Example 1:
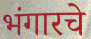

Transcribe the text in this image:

भंगारचे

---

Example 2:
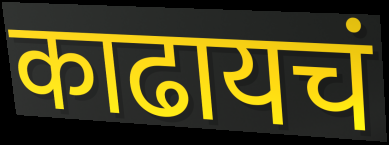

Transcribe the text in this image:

काढायचं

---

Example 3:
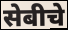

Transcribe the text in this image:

सेबीचे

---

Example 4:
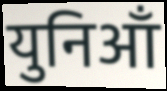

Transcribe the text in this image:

युनिआँ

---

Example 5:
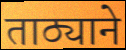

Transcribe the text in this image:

ताठ्याने